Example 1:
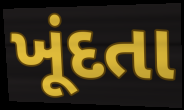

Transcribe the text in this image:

ખૂંદતા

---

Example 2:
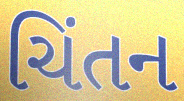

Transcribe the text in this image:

ચિંતન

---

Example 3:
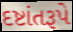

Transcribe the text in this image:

દષ્ટાંતરૂપે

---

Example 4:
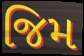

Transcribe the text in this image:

જિમ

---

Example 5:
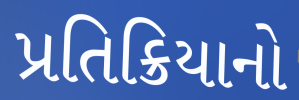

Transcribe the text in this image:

પ્રતિક્રિયાનો